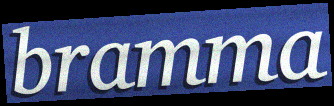
bramma